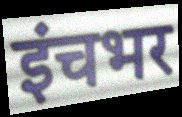
इंचभर